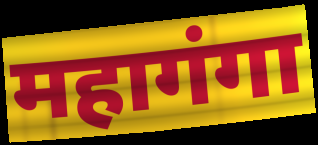
महागंगा